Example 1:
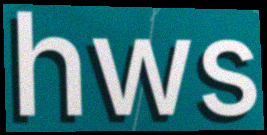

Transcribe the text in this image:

hws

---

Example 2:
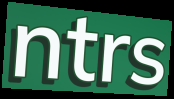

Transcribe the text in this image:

ntrs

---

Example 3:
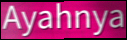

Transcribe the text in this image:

Ayahnya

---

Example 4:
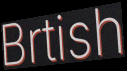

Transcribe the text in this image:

Brtish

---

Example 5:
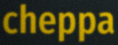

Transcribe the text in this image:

cheppa